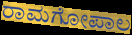
ರಾಮಗೋಪಾಲ